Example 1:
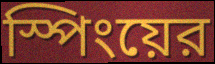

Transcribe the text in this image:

স্পিংয়ের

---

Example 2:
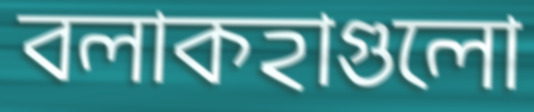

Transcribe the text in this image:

বলাকহাগুলো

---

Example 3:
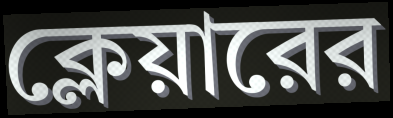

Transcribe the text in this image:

ক্লেয়ারের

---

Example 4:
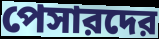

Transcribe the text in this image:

পেসারদের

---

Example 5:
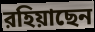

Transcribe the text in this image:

রহিয়াছেন